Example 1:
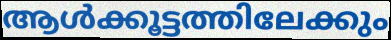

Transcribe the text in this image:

ആൾക്കൂട്ടത്തിലേക്കും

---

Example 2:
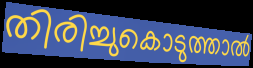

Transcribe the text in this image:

തിരിച്ചുകൊടുത്താൽ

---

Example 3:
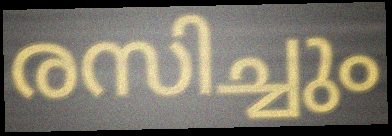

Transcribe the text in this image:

രസിച്ചും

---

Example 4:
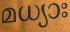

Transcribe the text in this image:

മധ്യാഃ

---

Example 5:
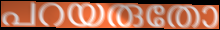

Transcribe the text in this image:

പറയരുതോ